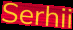
Serhii